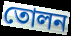
তোলন